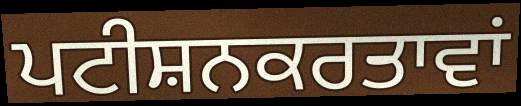
ਪਟੀਸ਼ਨਕਰਤਾਵਾਂ